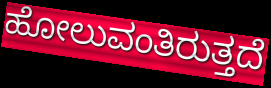
ಹೋಲುವಂತಿರುತ್ತದೆ